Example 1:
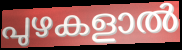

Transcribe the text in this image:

പുഴകളാൽ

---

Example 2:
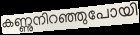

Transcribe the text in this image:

കണ്ണുനിറഞ്ഞുപോയി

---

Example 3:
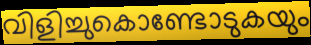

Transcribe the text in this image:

വിളിച്ചുകൊണ്ടോടുകയും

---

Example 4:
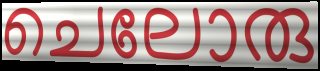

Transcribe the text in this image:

ചെലോരു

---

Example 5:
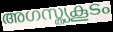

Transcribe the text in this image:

അഗസ്ത്യകൂടം